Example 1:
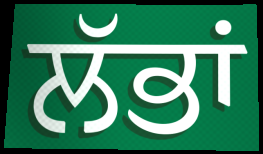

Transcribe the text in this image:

ਲੱਭਾਂ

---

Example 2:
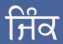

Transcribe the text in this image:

ਜਿੰਕ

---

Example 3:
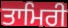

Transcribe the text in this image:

ਤਾਮਿਰੀ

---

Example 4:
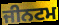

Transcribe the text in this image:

ਜੀਨਟਮ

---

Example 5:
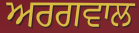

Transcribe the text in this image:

ਅਰਗਵਾਲ